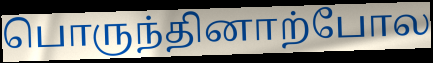
பொருந்தினாற்போல